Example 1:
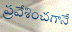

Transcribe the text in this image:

ప్రవేశించగానే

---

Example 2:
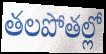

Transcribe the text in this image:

తలపోతల్లో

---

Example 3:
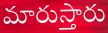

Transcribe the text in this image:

మారుస్తారు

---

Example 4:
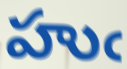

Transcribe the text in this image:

హుఁ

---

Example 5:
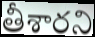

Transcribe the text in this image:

తీశారని